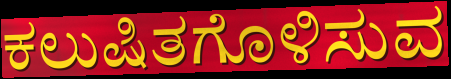
ಕಲುಷಿತಗೊಳಿಸುವ